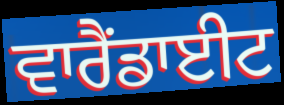
ਵਾਰੈਂਡਾਈਟ